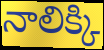
నాలిక్కి